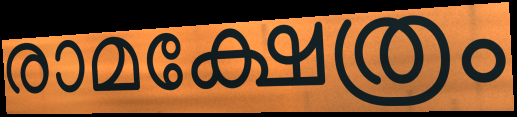
രാമക്ഷേത്രം